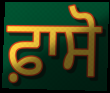
ਫ਼ਾਸੋ